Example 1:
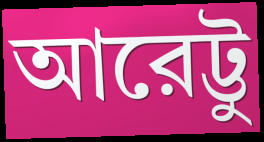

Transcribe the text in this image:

আরেট্টু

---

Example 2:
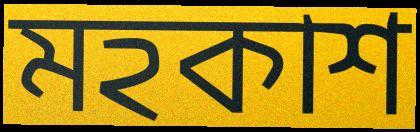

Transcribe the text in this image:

মহকাশ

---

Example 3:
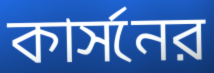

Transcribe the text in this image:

কার্সনের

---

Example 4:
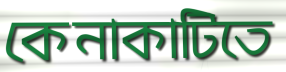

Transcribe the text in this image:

কেনাকাটিতে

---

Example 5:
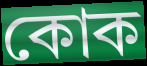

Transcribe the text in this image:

কোক